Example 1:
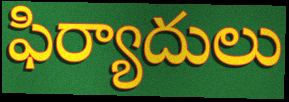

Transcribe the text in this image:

ఫిర్యాదులు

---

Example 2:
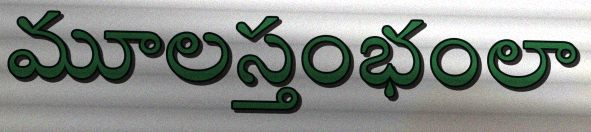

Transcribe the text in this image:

మూలస్తంభంలా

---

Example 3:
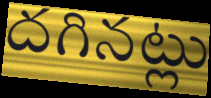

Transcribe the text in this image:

దగినట్లు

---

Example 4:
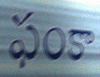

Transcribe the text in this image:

ఫంకా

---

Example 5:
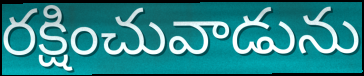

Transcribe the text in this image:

రక్షించువాడును